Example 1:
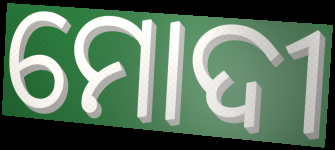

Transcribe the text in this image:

ମୋଦୀ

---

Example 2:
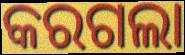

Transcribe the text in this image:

କରଗଲା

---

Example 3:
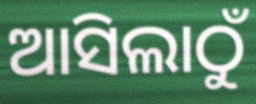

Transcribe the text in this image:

ଆସିଲାଠୁଁ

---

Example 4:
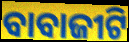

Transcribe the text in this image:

ବାବାଜୀଟି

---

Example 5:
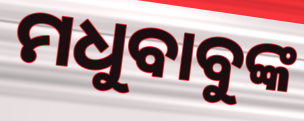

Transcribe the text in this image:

ମଧୁବାବୁଙ୍କ